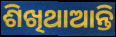
ଶିଖିଥାଆନ୍ତି